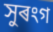
সুৰংগ